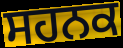
ਸਹਨਕ